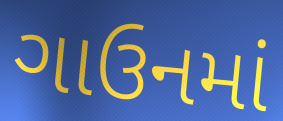
ગાઉનમાં